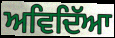
ਅਵਿਦਿੱਆ